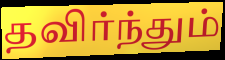
தவிர்ந்தும்